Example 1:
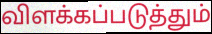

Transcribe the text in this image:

விளக்கப்படுத்தும்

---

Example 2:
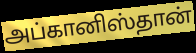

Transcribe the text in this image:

அப்கானிஸ்தான்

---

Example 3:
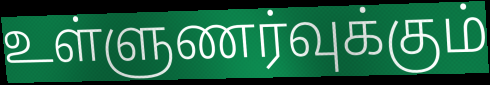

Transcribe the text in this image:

உள்ளுணர்வுக்கும்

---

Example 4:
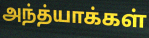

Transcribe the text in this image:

அந்த்யாக்கள்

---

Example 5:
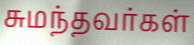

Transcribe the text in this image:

சுமந்தவர்கள்